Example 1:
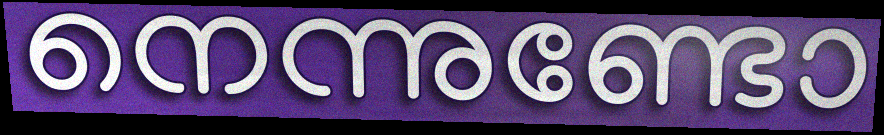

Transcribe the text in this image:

നെന്നുണ്ടോ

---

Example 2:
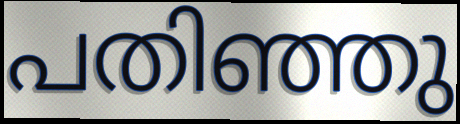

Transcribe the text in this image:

പതിഞ്ഞു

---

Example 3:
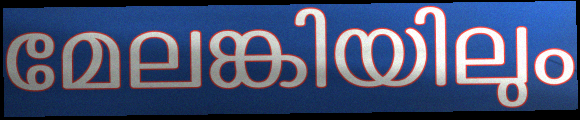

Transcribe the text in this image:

മേലങ്കിയിലും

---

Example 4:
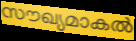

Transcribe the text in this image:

സൗഖ്യമാകൽ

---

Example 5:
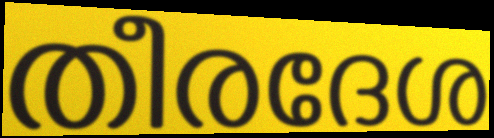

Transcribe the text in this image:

തീരദേശ